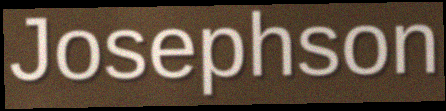
Josephson